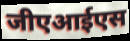
जीएआईएस